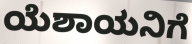
ಯೆಶಾಯನಿಗೆ